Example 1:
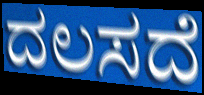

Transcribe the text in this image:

ದಲಸದೆ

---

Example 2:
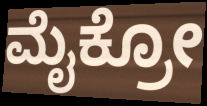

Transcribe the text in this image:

ಮೈಕ್ರೋ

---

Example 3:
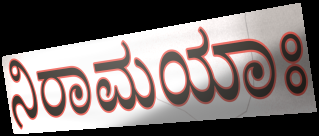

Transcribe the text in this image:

ನಿರಾಮಯಾಃ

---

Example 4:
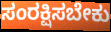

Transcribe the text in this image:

ಸಂರಕ್ಷಿಸಬೇಕು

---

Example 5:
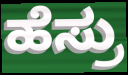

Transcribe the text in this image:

ಹೆಸ್ರು